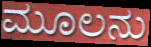
ಮೂಲನು